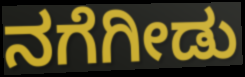
ನಗೆಗೀಡು